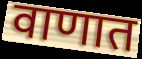
वाणात